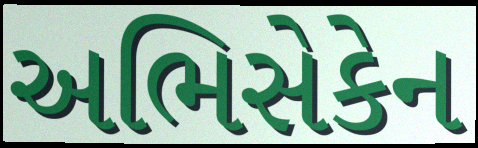
અભિસેકેન